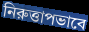
নিরুত্তাপভাবে